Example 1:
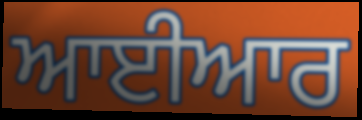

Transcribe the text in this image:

ਆਈਆਰ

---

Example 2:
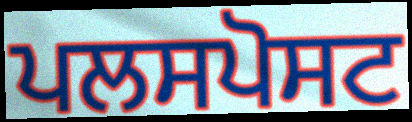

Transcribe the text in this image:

ਪਲਸਪੋਸਟ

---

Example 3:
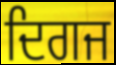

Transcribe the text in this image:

ਦਿਗਜ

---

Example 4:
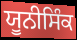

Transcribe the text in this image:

ਯੂਨੀਸਿੰਕ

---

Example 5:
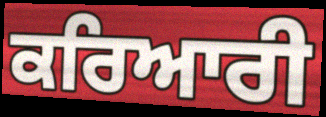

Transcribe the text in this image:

ਕਰਿਆਰੀ